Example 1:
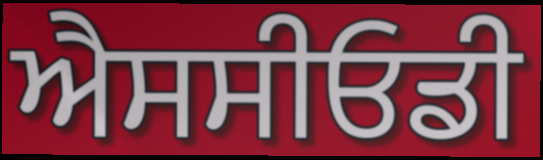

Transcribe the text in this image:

ਐਸਸੀਓਡੀ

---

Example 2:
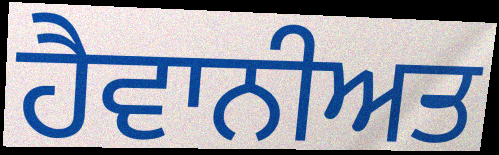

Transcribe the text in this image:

ਹੈਵਾਨੀਅਤ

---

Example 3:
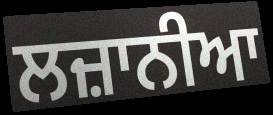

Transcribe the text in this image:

ਲਜ਼ਾਨੀਆ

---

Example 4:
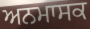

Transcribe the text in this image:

ਅਨਮਾਸਕ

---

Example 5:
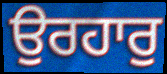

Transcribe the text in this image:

ਉਰਹਾਰੁ